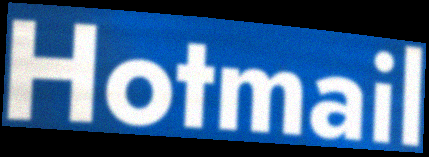
Hotmail